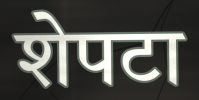
शेपटा